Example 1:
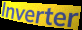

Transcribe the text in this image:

Inverter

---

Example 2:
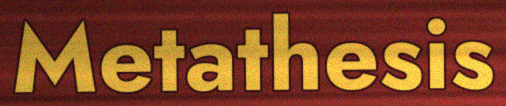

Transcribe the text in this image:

Metathesis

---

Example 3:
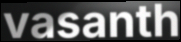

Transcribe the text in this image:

vasanth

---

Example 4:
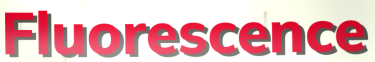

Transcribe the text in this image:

Fluorescence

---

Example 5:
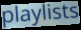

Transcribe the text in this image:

playlists